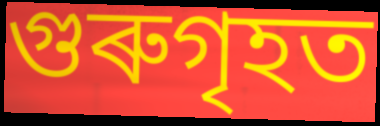
গুৰুগৃহত